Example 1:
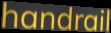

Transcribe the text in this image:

handrail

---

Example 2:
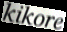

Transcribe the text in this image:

kikore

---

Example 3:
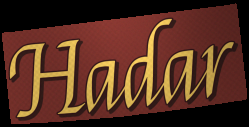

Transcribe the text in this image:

Hadar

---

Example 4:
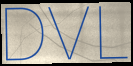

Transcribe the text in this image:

DVL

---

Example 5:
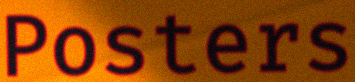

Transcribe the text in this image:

Posters